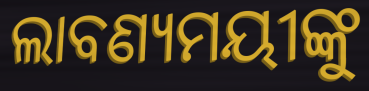
ଲାବଣ୍ୟମୟୀଙ୍କୁ